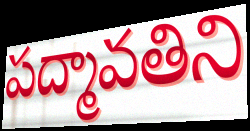
పద్మావతిని